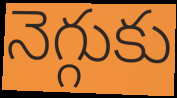
నెగ్గుకు